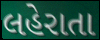
લહેરાતા